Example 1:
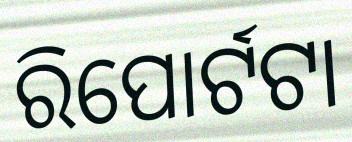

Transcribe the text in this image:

ରିପୋର୍ଟଟା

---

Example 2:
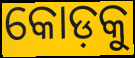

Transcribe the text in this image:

କୋଡ଼କୁ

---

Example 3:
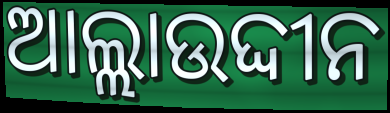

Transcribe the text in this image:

ଆଲ୍ଲାଉଦ୍ଦୀନ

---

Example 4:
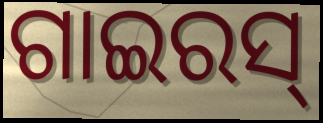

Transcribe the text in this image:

ଗାଇରସ୍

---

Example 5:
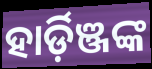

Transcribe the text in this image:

ହାର୍ଡ଼ିଞ୍ଜଙ୍କ